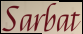
Sarbat